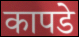
कापडे